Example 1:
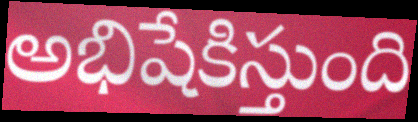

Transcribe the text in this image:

అభిషేకిస్తుంది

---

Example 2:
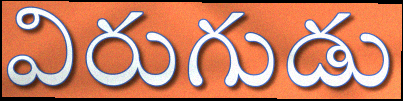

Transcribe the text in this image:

విరుగుడు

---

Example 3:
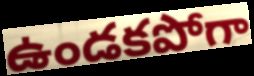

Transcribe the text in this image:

ఉండకపోగా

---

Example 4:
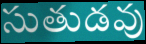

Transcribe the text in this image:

సుతుడవు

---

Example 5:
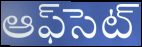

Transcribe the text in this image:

ఆఫ్‌సెట్